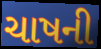
ચાષની